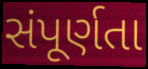
સંપૂર્ણતા